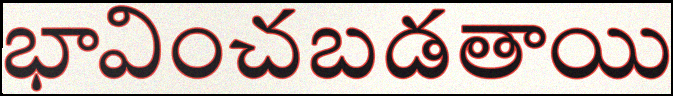
భావించబడతాయి